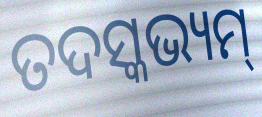
ତଦସ୍କଭ୍ୟମ୍